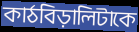
কাঠবিড়ালিটাকে